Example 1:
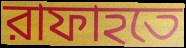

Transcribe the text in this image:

রাফাহতে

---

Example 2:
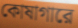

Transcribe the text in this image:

কোষাগারে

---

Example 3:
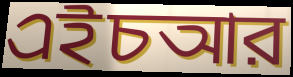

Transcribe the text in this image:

এইচআর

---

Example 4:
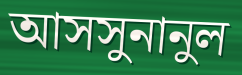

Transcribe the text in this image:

আসসুনানুল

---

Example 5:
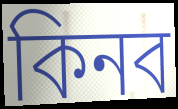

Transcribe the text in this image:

কিনব